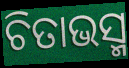
ଚିତାଭସ୍ମ